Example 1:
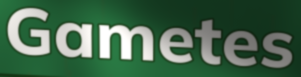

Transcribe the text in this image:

Gametes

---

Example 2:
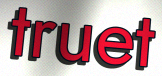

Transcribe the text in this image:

truet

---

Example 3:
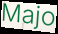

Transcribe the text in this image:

Majo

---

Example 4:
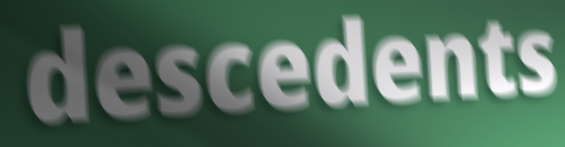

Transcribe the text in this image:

descedents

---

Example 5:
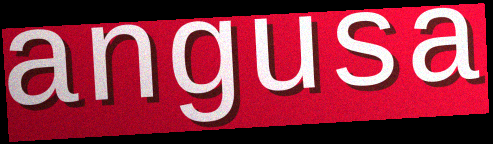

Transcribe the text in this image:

angusa